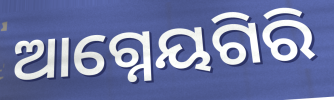
ଆଗ୍ନେୟଗିରି